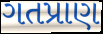
ગતપ્રાણ